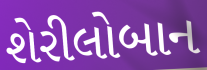
શેરીલોબાન